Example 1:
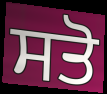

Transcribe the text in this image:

ਸਤੋ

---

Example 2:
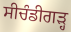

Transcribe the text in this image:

ਸੀਚੰਡੀਗੜ੍ਹ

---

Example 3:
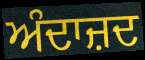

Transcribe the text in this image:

ਅੰਦਾਜ਼ਦ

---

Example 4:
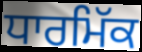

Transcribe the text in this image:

ਧਾਰਮਿੱਕ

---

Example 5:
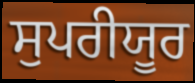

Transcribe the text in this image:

ਸੁਪਰੀਯੂਰ